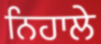
ਨਿਹਾਲੇ